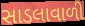
સાડલાવાળી